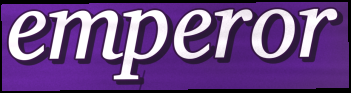
emperor